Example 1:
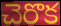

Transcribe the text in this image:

చెరొక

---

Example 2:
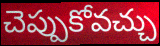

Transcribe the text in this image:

చెప్పుకోవచ్చు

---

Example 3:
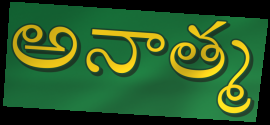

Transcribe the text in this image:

అనాత్మ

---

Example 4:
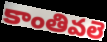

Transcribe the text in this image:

కాంతివలె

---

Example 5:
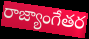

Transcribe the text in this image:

రాజ్యాంగేతర